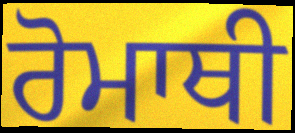
ਰੋਮਾਥੀ